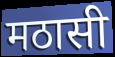
मठासी